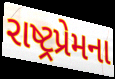
રાષ્ટ્રપ્રેમના